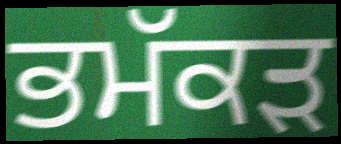
ਭਮੱਕੜ